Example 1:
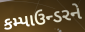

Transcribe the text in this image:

કમ્પાઉન્ડરને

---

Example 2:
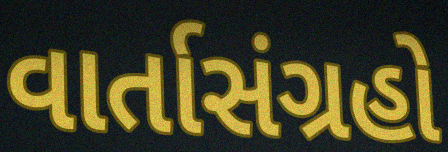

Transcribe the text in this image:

વાર્તાસંગ્રહો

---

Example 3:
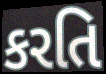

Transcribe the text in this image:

કરતિ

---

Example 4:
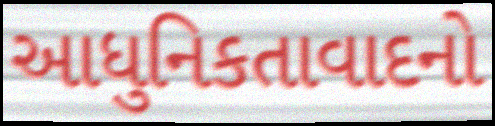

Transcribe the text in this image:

આધુનિકતાવાદનો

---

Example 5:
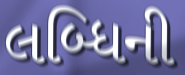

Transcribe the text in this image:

લબ્ધિની